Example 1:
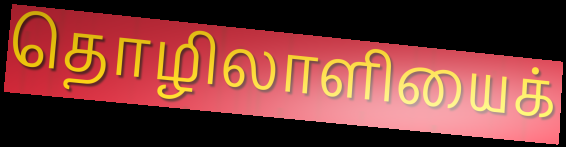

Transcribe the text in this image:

தொழிலாளியைக்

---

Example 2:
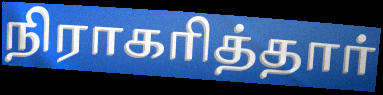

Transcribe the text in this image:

நிராகரித்தார்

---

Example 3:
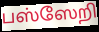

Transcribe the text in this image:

பஸ்ஸேறி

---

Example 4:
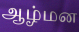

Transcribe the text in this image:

ஆழ்மன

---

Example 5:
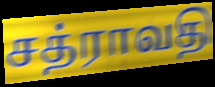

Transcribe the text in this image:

சத்ராவதி